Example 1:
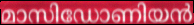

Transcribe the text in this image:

മാസിഡോണിയൻ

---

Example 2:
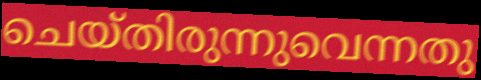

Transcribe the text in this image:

ചെയ്തിരുന്നുവെന്നതു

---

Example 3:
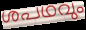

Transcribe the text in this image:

ശപഥവും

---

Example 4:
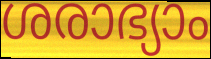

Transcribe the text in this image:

ശരാഭ്യാം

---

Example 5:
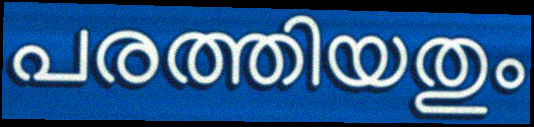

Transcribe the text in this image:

പരത്തിയതും